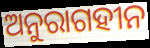
ଅନୁରାଗହୀନ